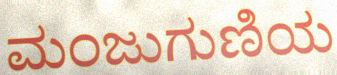
ಮಂಜುಗುಣಿಯ